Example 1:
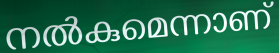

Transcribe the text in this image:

നൽകുമെന്നാണ്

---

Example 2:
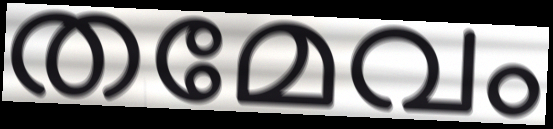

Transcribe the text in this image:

തമേവം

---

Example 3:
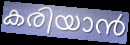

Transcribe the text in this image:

കരിയാൻ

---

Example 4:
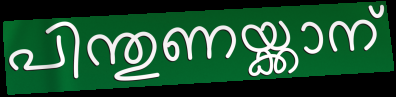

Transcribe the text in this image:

പിന്തുണയ്ക്കാന്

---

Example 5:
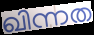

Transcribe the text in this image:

ഖിന്നത